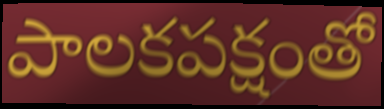
పాలకపక్షంతో